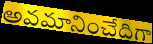
అవమానించేదిగా